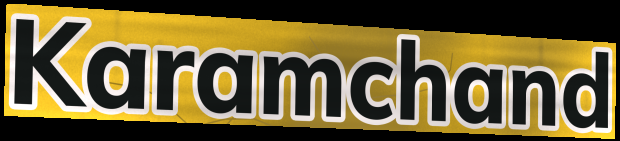
Karamchand